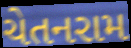
ચેતનરામ